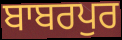
ਬਾਬਰਪੁਰ